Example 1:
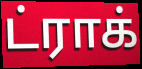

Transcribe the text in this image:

ட்ராக்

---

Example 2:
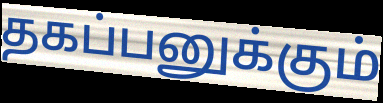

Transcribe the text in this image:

தகப்பனுக்கும்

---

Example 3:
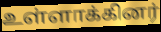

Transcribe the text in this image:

உள்ளாக்கினர்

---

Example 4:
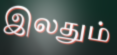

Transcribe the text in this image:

இலதும்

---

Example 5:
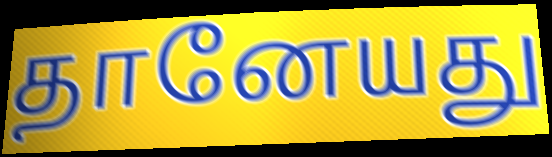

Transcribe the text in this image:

தானேயது